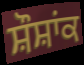
ਸ਼ੌਸ਼ਾਂਕ